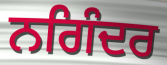
ਨਗਿੰਦਰ